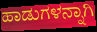
ಹಾಡುಗಳನ್ನಾಗಿ